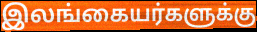
இலங்கையர்களுக்கு